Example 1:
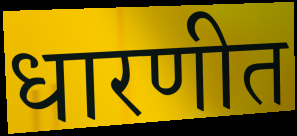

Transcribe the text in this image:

धारणीत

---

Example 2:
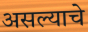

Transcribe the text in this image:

असल्‍याचे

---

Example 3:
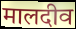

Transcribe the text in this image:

मालदीव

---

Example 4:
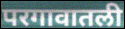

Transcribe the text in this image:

परगावातली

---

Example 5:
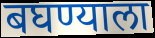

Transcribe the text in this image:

बघण्याला